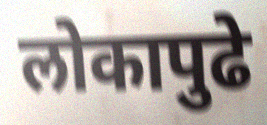
लोकापुढे